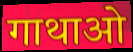
गाथाओ